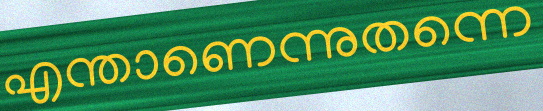
എന്താണെന്നുതന്നെ